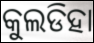
କୁଲଡିହା